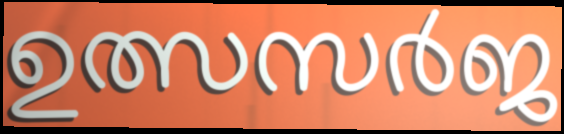
ഉത്സസർജ